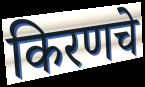
किरणचे